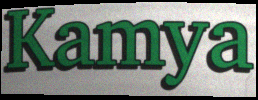
Kamya